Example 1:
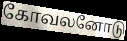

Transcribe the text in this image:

கோவலனோடு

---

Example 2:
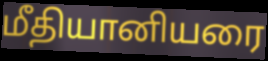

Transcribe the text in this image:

மீதியானியரை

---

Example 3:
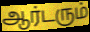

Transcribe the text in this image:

ஆர்டரும்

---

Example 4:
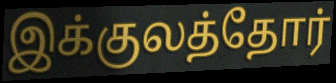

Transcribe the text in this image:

இக்குலத்தோர்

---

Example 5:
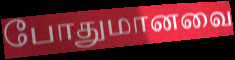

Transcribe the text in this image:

போதுமானவை